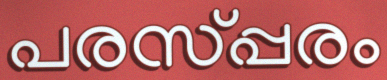
പരസ്പ്പരം